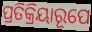
ପ୍ରତିକ୍ରିୟାରୂପେ